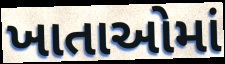
ખાતાઓમાં